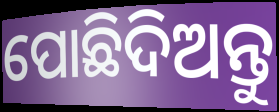
ପୋଛିଦିଅନ୍ତୁ